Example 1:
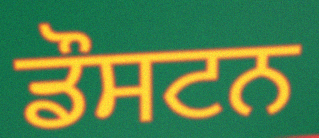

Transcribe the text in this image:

ਡੌਸਟਨ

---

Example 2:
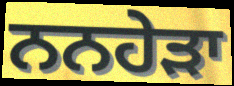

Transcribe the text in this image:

ਨਨਹੇੜਾ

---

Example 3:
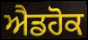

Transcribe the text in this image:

ਐਡਹੋਕ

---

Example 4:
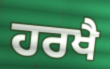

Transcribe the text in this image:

ਹਰਖੈ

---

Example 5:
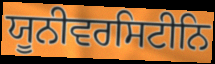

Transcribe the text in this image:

ਯੂਨੀਵਰਸਿਟੀਨਿ